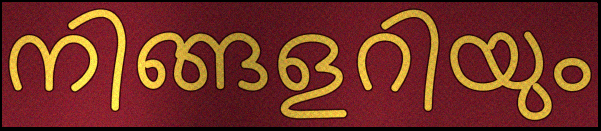
നിങ്ങളറിയും